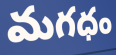
మగధం